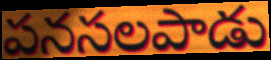
పనసలపాడు